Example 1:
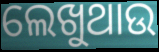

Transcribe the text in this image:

ଲେଖୁଥାଉ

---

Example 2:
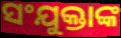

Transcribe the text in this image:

ସଂଯୁକ୍ତାଙ୍କ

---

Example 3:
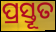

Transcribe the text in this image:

ପ୍ରସ୍ତୂତ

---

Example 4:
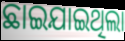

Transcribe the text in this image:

ଛାଇଯାଇଥିଲା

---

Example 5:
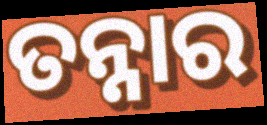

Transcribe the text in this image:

ତନ୍ନାର